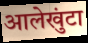
आलेखुंटा